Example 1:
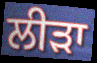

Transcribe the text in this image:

ਲੀੜਾ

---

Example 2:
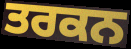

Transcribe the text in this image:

ਤਰਕਨ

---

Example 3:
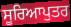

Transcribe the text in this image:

ਸੂਰਿਆਪੁਤਰ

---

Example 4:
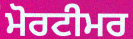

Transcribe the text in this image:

ਮੋਰਟੀਮਰ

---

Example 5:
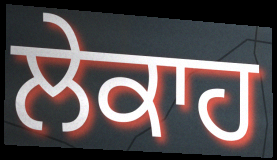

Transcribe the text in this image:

ਲੇਕਾਹ